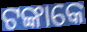
ଟଙ୍କାକେ